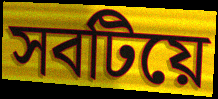
সবটিয়ে